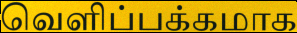
வெளிப்பக்கமாக